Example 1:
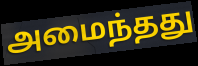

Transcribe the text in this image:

அமைந்தது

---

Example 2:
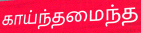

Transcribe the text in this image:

காய்ந்தமைந்த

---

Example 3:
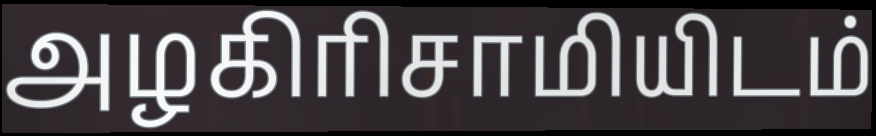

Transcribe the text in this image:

அழகிரிசாமியிடம்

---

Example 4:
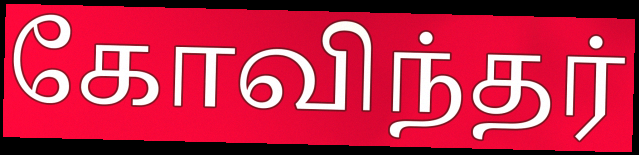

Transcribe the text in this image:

கோவிந்தர்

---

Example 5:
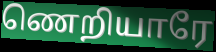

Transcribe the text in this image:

ணெறியாரே